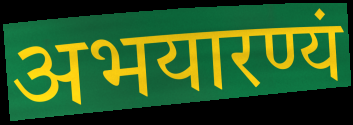
अभयारण्यं